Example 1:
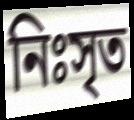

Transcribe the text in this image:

নিঃসৃত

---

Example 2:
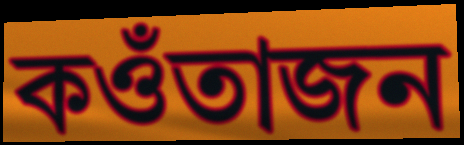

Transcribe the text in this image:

কওঁতাজন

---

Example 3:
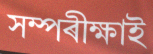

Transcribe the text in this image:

সম্পৰীক্ষাই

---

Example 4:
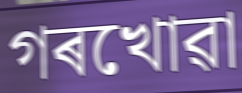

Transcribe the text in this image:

গৰখোৱা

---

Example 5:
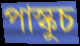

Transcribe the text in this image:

পাস্কুচ